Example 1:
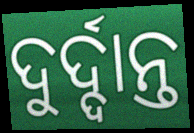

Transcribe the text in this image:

ଦୁର୍ଦ୍ଦାନ୍ତ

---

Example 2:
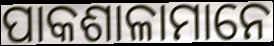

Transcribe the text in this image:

ପାକଶାଳାମାନେ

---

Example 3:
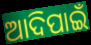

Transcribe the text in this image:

ଆଦିପାଇଁ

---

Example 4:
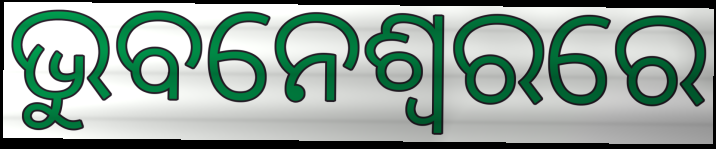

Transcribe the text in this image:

ଭୁବନେଶ୍ୱରରେ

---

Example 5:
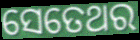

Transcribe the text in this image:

ସେତେଥର